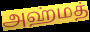
அஹ்மத்